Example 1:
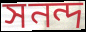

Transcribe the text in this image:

সনন্দ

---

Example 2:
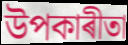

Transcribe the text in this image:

উপকাৰীতা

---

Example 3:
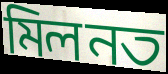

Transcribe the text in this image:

মিলনত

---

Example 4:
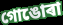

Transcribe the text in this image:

গোঙোৰা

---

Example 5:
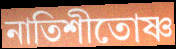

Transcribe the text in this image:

নাতিশীতোষ্ণ